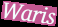
Waris